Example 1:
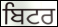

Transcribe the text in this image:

ਬਿਟਰ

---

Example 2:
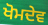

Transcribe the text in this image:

ਖੋਮਦੇਵ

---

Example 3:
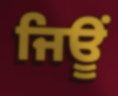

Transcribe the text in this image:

ਜਿਊਂ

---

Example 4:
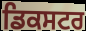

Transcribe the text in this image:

ਡਿਕਸਟਰ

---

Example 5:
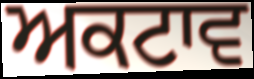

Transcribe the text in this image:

ਅਕਟਾਵ